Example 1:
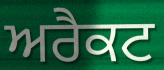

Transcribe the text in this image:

ਅਰੈਕਟ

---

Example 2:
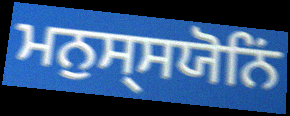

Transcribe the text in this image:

ਮਨੁਸ੍ਸਯੋਨਿਂ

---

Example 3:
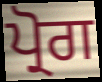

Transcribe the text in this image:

ਪ੍ਰੋਗ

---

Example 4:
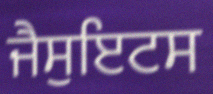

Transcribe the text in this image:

ਜੈਸੁਇਟਸ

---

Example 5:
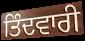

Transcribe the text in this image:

ਤਿੰਦਵਾਰੀ